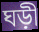
ঘড়ী